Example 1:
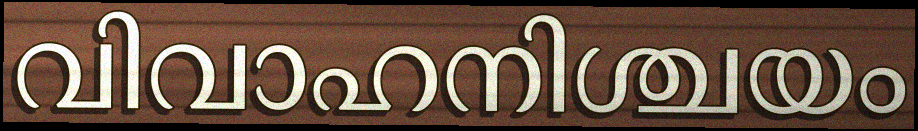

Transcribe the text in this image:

വിവാഹനിശ്ചയം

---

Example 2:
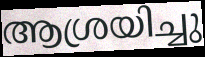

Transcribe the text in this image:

ആശ്രയിച്ചു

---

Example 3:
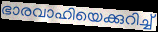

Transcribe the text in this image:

ഭാരവാഹിയെക്കുറിച്ച്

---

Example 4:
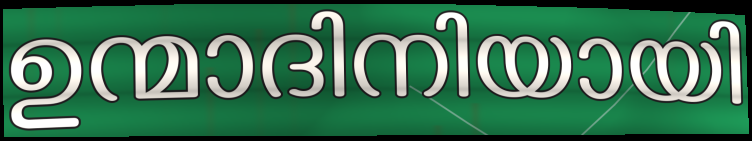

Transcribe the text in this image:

ഉന്മാദിനിയായി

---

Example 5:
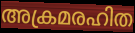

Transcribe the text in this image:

അക്രമരഹിത